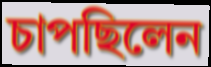
চাপছিলেন